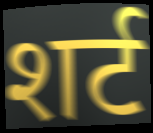
शर्ट